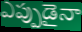
ఎప్పుడైనా